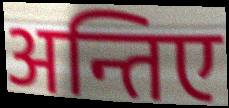
अन्तिए